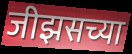
जीझसच्या